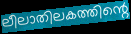
ലീലാതിലകത്തിന്റെ